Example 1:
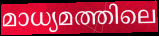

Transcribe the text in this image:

മാധ്യമത്തിലെ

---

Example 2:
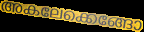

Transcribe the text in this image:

അകലേക്കെങ്ങോ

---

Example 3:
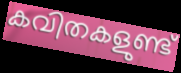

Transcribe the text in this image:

കവിതകളുണ്ട്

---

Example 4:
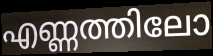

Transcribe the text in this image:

എണ്ണത്തിലോ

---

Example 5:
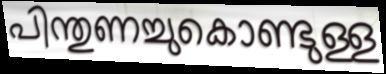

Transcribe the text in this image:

പിന്തുണച്ചുകൊണ്ടുള്ള